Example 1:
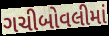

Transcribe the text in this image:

ગચીબોવલીમાં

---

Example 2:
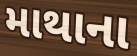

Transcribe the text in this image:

માથાના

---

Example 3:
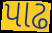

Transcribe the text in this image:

પાઢ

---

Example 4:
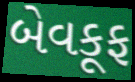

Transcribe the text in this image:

બેવકૂફ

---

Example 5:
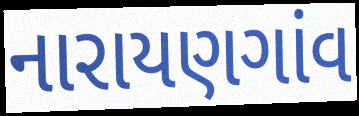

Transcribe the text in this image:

નારાયણગાંવ